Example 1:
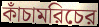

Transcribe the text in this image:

কাঁচামরিচের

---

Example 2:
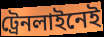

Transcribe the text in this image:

ট্রেনলাইনেই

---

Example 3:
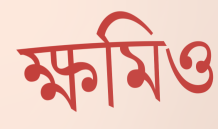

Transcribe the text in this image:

ক্ষমিও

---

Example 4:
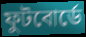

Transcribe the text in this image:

ফুটবোর্ডে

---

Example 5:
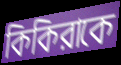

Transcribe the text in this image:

কিকিরাকে